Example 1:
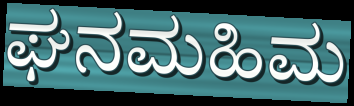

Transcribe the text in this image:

ಘನಮಹಿಮ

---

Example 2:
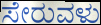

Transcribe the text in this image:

ಸೇರುವಳು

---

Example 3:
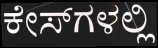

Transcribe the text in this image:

ಕೇಸ್‌ಗಳಲ್ಲಿ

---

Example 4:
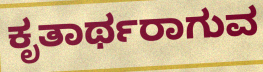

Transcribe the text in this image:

ಕೃತಾರ್ಥರಾಗುವ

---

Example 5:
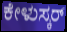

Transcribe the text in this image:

ಕೇಳುಸ್ಕರ್